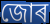
জোৰ